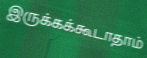
இருக்கக்கூடாதாம்